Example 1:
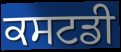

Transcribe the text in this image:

ਕਸਟਡੀ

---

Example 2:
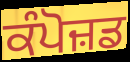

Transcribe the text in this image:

ਕੰਪੋਜ਼ਡ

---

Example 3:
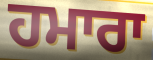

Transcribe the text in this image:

ਹਮਾਰਾ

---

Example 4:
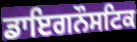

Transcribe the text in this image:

ਡਾਇਗਨੌਸਟਿਕ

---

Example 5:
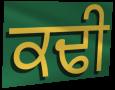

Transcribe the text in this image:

ਕਢੀ